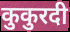
कुकुरदी